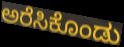
ಅರೆಸಿಕೊಂಡು